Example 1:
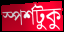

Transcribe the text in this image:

স্পর্শটুকু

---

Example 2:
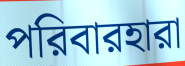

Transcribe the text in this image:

পরিবারহারা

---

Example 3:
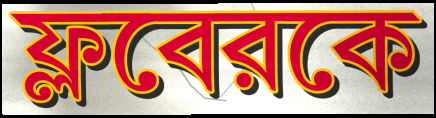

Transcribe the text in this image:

ফ্লবেরকে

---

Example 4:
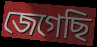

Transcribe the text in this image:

জেগেছি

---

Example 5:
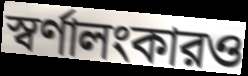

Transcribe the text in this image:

স্বর্ণালংকারও